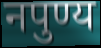
नपुण्य